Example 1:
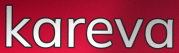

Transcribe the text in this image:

kareva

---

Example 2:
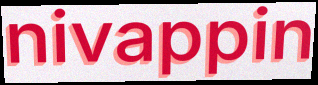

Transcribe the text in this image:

nivappin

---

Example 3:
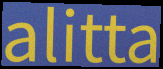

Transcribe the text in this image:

alitta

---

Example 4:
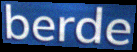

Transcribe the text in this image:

berde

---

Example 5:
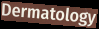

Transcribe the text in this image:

Dermatology